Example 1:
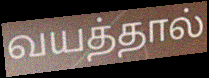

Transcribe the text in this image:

வயத்தால்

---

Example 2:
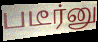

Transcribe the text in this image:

படீர்னு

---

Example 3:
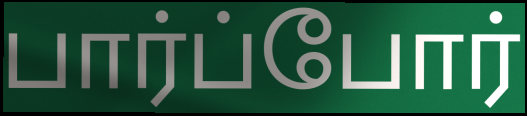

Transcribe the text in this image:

பார்ப்போர்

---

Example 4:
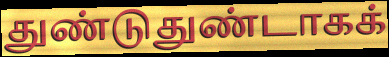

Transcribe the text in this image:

துண்டுதுண்டாகக்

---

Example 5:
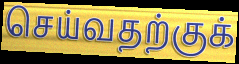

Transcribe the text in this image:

செய்வதற்குக்